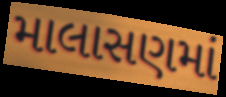
માલાસણમાં